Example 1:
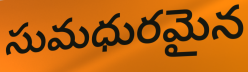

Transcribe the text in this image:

సుమధురమైన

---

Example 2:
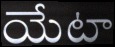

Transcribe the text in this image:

యేటా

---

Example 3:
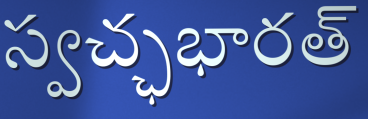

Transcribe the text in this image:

స్వచ్ఛభారత్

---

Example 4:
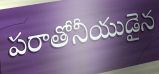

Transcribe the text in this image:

పరాతోనీయుడైన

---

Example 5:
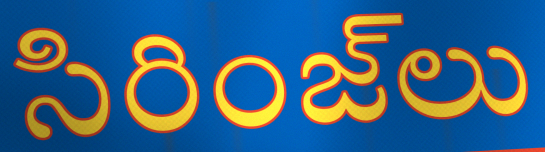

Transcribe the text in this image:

సిరింజ్‌లు